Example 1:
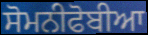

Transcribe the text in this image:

ਸੋਮਨੀਫੋਬੀਆ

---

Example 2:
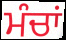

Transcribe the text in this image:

ਮੰਚਾਂ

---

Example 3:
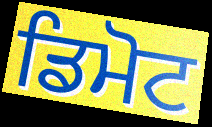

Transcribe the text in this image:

ਡਿਮੋਟ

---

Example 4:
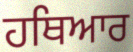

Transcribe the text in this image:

ਹਥਿਆਰ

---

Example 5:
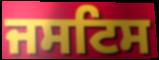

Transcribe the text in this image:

ਜਸਟਿਸ